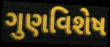
ગુણવિશેષ